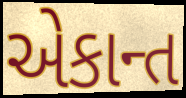
એકાન્ત